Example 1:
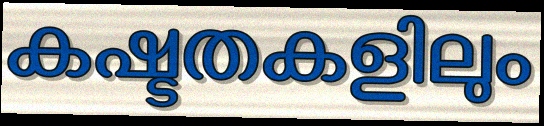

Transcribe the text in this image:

കഷ്ടതകളിലും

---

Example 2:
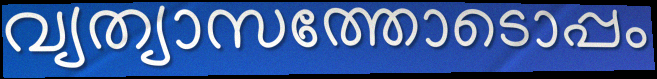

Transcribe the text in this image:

വ്യത്യാസത്തോടൊപ്പം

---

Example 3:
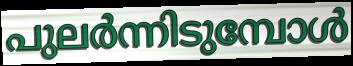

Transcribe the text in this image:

പുലർന്നിടുമ്പോൾ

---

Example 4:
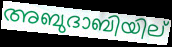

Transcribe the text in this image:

അബുദാബിയില്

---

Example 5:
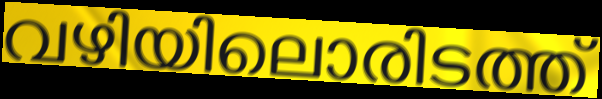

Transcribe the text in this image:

വഴിയിലൊരിടത്ത്